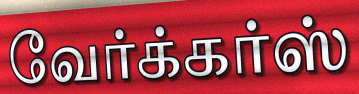
வேர்க்கர்ஸ்